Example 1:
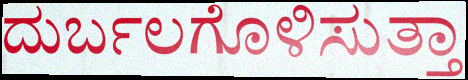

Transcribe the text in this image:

ದುರ್ಬಲಗೊಳಿಸುತ್ತಾ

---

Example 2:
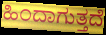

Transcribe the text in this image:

ಹಿಂದಾಗುತ್ತದೆ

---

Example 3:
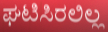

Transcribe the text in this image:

ಘಟಿಸಿರಲಿಲ್ಲ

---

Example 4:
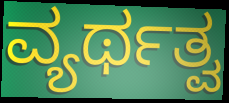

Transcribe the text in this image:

ವ್ಯರ್ಥತ್ವ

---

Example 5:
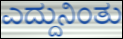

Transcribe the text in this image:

ಎದ್ದುನಿಂತು